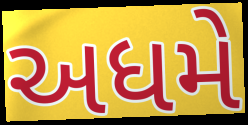
અધમે